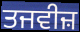
ਤਜਵੀਜ਼